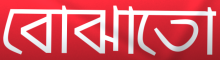
বোঝাতো